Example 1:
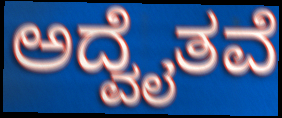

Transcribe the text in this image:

ಅದ್ವೈತವೆ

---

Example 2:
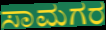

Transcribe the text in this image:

ಸಾಮಗರ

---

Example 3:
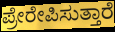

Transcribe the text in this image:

ಪ್ರೇರೇಪಿಸುತ್ತಾರೆ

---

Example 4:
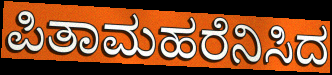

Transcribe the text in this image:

ಪಿತಾಮಹರೆನಿಸಿದ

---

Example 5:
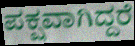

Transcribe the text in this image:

ಪಕ್ಷವಾಗಿದ್ದರೆ